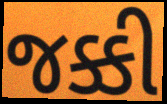
જક્કી